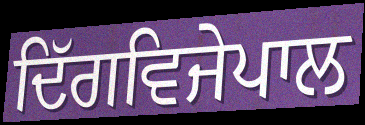
ਦਿੱਗਵਿਜੇਪਾਲ